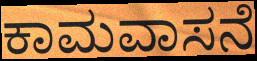
ಕಾಮವಾಸನೆ